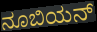
ನೂಬಿಯನ್